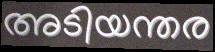
അടിയന്തര